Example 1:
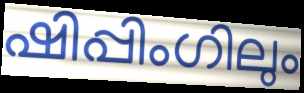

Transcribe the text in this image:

ഷിപ്പിംഗിലും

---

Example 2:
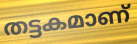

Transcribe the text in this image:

തട്ടകമാണ്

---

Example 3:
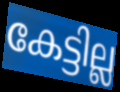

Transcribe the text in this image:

കേട്ടില്ല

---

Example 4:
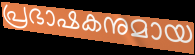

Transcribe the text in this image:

പ്രഭാഷകനുമായ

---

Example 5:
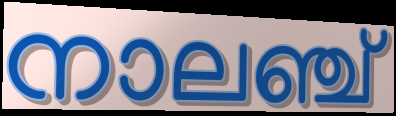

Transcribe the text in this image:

നാലഞ്ച്